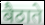
बैठाते